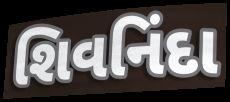
શિવનિંદા